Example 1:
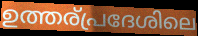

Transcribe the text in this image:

ഉത്തര്പ്രദേശിലെ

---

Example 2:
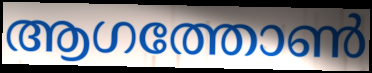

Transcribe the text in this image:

ആഗത്തോൺ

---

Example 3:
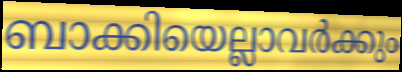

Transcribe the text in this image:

ബാക്കിയെല്ലാവർക്കും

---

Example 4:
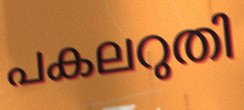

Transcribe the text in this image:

പകലറുതി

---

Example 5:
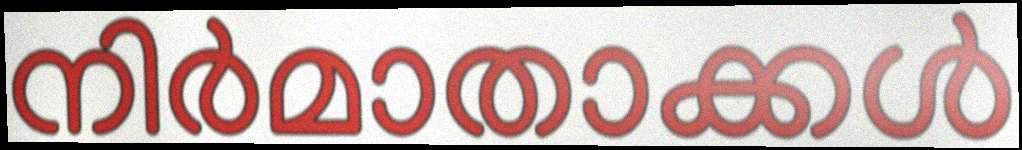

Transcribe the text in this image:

നിർമാതാക്കൾ